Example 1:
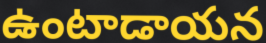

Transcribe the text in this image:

ఉంటాడాయన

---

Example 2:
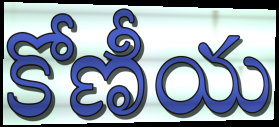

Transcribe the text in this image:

కోణీయ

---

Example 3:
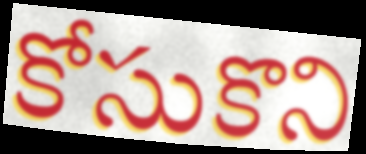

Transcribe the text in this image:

కోసుకొని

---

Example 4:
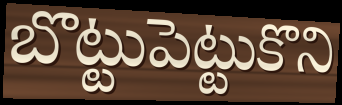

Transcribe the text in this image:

బొట్టుపెట్టుకొని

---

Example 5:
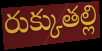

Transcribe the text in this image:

రుక్కుతల్లి